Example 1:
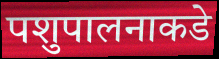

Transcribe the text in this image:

पशुपालनाकडे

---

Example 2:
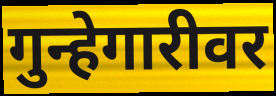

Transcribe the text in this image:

गुन्हेगारीवर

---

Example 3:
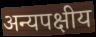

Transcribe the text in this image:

अन्यपक्षीय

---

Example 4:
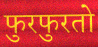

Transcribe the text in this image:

फुरफुरतो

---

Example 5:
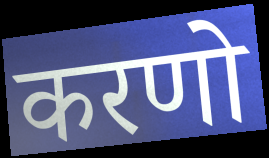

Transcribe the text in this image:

करणो